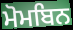
ਮੋਮਬਿਨ